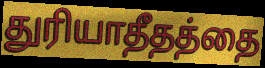
துரியாதீதத்தை